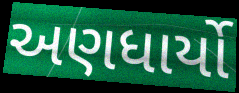
અણધાર્યો